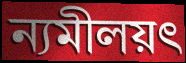
ন্যমীলয়ৎ